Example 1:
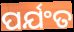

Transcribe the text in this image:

ପର୍ଯଂତ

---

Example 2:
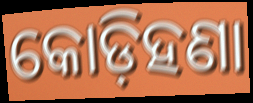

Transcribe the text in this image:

କୋଡ଼ିହଣା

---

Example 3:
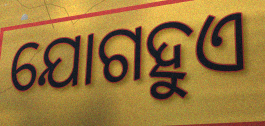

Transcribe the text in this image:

ଯୋଗହୁଏ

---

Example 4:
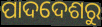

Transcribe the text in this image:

ପାଦଦେଶରୁ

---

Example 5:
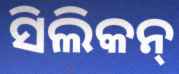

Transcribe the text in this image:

ସିଲିକନ୍